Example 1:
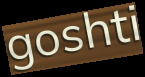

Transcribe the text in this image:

goshti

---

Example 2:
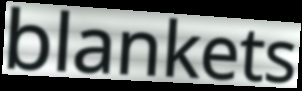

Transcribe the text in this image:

blankets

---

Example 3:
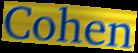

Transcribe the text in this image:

Cohen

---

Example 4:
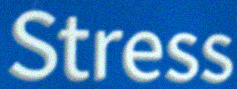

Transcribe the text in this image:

Stress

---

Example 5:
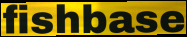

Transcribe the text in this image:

fishbase